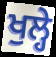
ਖੁਲ੍ਹੇ